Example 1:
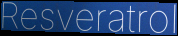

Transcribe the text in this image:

Resveratrol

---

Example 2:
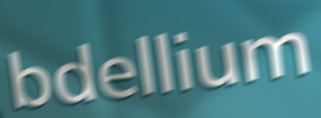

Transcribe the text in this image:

bdellium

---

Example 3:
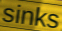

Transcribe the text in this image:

sinks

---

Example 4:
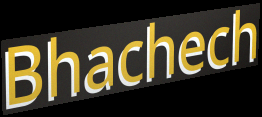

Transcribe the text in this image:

Bhachech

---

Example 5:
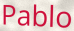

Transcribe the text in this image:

Pablo